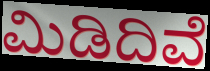
ಮಿಡಿದಿವೆ